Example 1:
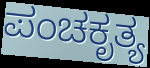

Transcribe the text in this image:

ಪಂಚಕೃತ್ಯ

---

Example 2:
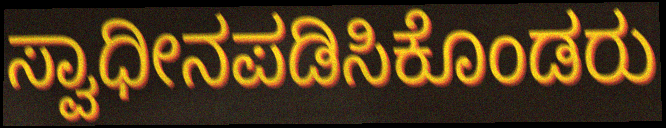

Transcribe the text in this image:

ಸ್ವಾಧೀನಪಡಿಸಿಕೊಂಡರು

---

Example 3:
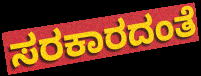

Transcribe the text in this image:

ಸರಕಾರದಂತೆ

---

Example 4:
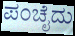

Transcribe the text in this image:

ಪಂಚೈದು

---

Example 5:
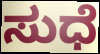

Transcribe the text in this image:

ಸುಧೆ